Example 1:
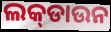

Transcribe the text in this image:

ଲକ୍‌ଡାଉନ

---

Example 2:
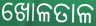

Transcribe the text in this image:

ଖୋଳତାଳ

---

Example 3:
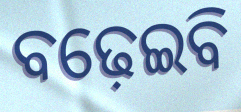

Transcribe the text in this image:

ବଢ଼େଇବି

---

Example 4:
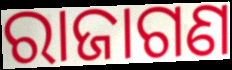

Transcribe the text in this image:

ରାଜାଗଣ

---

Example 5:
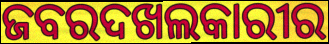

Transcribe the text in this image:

ଜବରଦଖଲକାରୀର